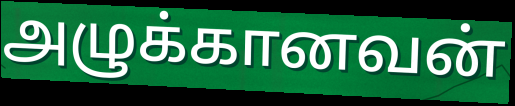
அழுக்கானவன்